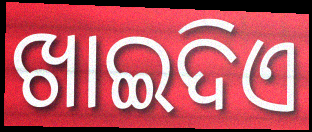
ଖାଇଦିଏ